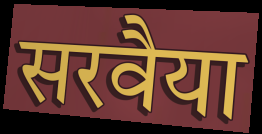
सरवैया